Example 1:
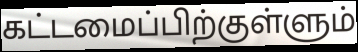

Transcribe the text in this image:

கட்டமைப்பிற்குள்ளும்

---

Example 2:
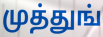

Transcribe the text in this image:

முத்துங்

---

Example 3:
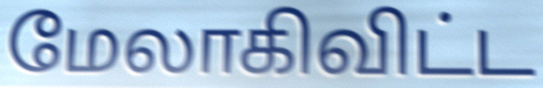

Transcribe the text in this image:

மேலாகிவிட்ட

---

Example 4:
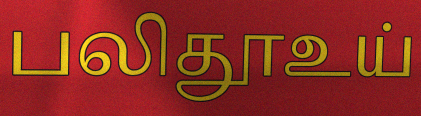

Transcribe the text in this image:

பலிதூஉய்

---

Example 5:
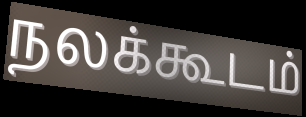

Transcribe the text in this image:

நலக்கூடம்